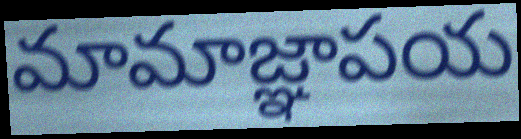
మామాజ్ఞాపయ